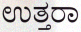
ಉತ್ತರಾ